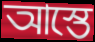
আস্তে